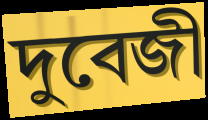
দুবেজী